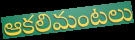
ఆకలిమంటలు